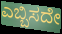
ಎಬ್ಬಿಸದೇ